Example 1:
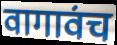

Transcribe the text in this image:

वागावंच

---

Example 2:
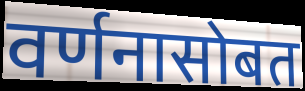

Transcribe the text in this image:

वर्णनासोबत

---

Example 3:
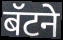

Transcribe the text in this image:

बॅटने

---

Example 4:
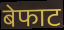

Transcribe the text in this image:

बेफाट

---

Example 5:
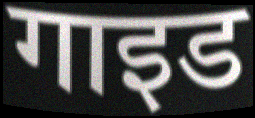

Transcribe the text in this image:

गाइड